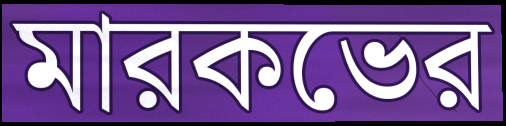
মারকভের